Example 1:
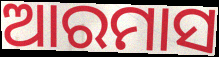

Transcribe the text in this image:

ଆରମାସ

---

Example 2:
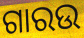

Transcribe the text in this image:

ଗାରଉ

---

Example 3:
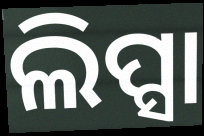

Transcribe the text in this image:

ଲିପ୍ସା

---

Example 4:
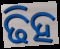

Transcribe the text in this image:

ଢିହ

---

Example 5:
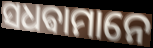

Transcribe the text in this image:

ସଧଵାମାନେ